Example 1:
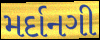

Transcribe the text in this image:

મર્દાનગી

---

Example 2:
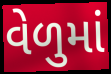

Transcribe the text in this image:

વેળુમાં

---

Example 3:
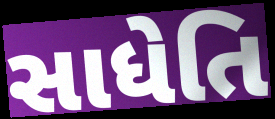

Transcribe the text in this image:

સાધેતિ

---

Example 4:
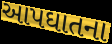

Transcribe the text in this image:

આપઘાતના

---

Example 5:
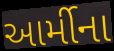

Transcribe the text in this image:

આર્મીના